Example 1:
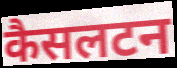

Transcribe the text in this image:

कैसलटन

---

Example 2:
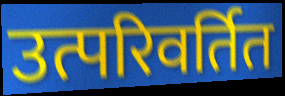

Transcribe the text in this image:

उत्परिवर्तित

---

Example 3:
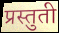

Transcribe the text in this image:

प्रस्तुती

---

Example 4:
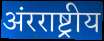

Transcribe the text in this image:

अंरराष्ट्रीय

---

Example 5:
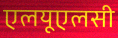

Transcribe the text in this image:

एलयूएलसी